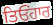
ਤਿਓਂਹਾਰ